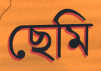
ছেমি